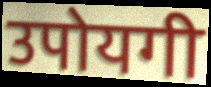
उपोयगी